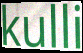
kulli